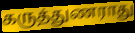
கருத்துணராது